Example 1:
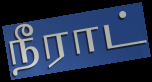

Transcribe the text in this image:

நீராட்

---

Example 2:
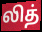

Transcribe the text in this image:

லித்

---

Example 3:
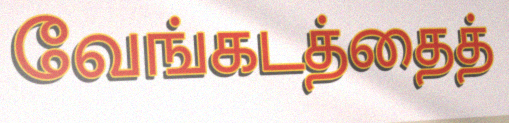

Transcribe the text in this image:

வேங்கடத்தைத்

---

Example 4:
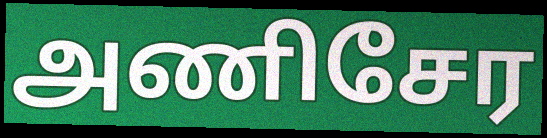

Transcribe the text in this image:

அணிசேர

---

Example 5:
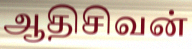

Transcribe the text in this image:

ஆதிசிவன்